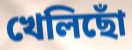
খেলিছোঁ